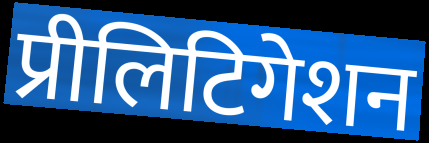
प्रीलिटिगेशन